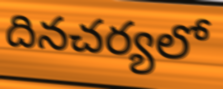
దినచర్యలో